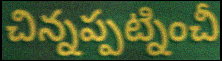
చిన్నప్పట్నించీ